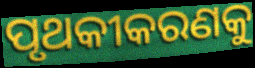
ପୃଥକୀକରଣକୁ